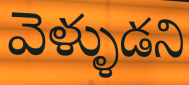
వెళ్ళుడని